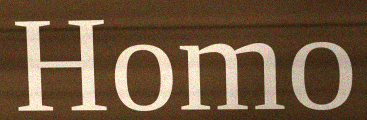
Homo